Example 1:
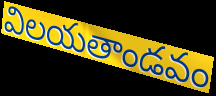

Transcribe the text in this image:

విలయతాండవం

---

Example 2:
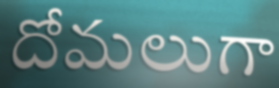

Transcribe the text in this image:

దోమలుగా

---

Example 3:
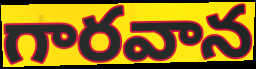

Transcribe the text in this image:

గారవాన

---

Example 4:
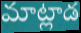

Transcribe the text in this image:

మాట్లాడ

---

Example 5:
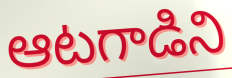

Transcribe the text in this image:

ఆటగాడిని